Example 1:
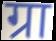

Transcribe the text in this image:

ग्रा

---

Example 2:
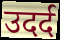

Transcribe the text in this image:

उदर्द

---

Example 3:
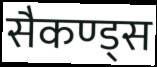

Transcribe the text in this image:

सैकण्ड्स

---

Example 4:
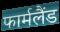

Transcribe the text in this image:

फार्मलैंड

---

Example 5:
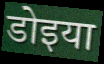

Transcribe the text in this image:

डोइया